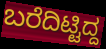
ಬರೆದಿಟ್ಟಿದ್ದ